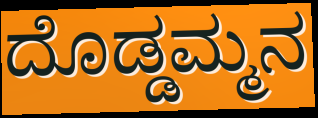
ದೊಡ್ಡಮ್ಮನ